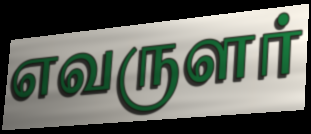
எவருளர்